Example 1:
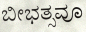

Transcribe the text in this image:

ಬೀಭತ್ಸವೂ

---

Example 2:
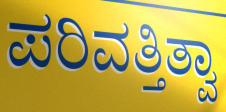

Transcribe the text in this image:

ಪರಿವತ್ತಿತ್ವಾ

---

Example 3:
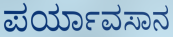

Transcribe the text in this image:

ಪರ್ಯಾವಸಾನ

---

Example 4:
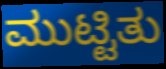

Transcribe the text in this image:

ಮುಟ್ಟಿತು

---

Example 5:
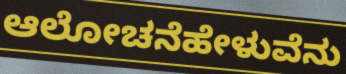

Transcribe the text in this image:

ಆಲೋಚನೆಹೇಳುವೆನು